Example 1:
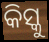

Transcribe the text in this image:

କିସ୍କୁ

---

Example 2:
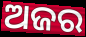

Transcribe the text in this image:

ଅଜର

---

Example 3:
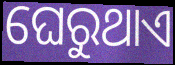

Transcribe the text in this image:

ଘେରୁଥାଏ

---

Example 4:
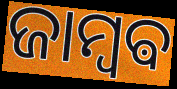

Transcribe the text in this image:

ଜାମ୍ବଵ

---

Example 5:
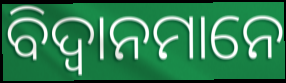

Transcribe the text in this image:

ବିଦ୍ଵାନମାନେ